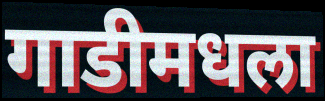
गाडीमधला